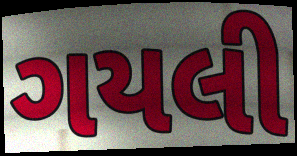
ગયલી